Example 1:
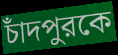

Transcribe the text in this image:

চাঁদপুরকে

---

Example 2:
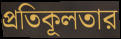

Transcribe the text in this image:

প্রতিকূলতার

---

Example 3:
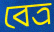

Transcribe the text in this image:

বেত্র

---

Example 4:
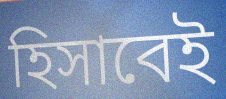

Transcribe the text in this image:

হিসাবেই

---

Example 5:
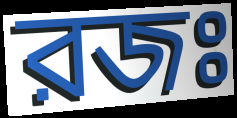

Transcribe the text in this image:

রজঃ